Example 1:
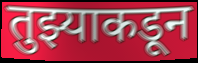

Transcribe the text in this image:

तुझ्याकडून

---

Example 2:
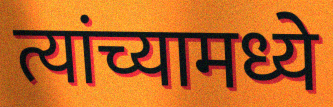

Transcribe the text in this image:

त्यांच्यामध्ये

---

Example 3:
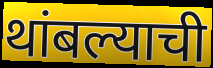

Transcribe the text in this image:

थांबल्याची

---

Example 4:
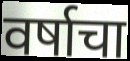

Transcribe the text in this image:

वर्षाचा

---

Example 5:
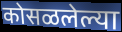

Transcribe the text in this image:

कोसळलेल्या